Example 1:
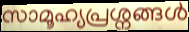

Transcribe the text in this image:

സാമൂഹ്യപ്രശ്നങ്ങൾ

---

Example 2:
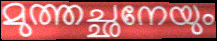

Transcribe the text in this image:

മുത്തച്ഛനേയും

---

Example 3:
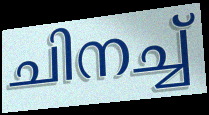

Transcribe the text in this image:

ചിനച്ച്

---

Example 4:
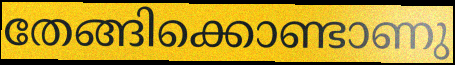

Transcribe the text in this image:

തേങ്ങിക്കൊണ്ടാണു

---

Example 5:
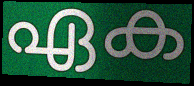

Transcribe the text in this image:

ഏക